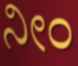
ನೀಂ